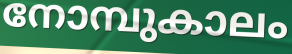
നോമ്പുകാലം